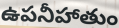
ఉపనీహాతుం